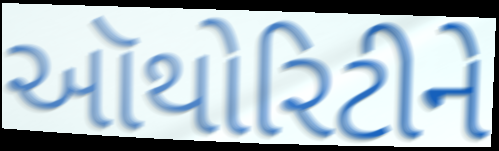
ઑથોરિટીને